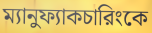
ম্যানুফ্যাকচারিংকে